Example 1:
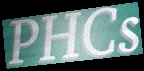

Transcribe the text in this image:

PHCs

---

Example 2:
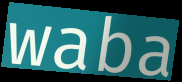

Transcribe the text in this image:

waba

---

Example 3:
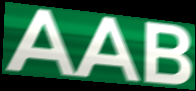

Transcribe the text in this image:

AAB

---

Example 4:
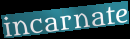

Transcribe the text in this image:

incarnate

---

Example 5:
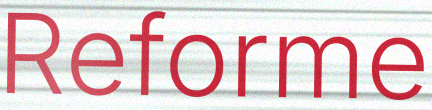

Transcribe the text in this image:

Reforme